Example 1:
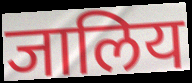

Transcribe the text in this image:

जालिय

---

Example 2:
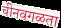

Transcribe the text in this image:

चीनवगळता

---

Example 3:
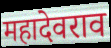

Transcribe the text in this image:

महादेवराव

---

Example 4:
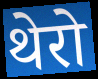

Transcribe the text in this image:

थेरो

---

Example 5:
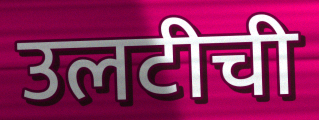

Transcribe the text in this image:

उलटीची